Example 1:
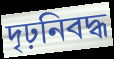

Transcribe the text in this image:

দৃঢ়নিবদ্ধ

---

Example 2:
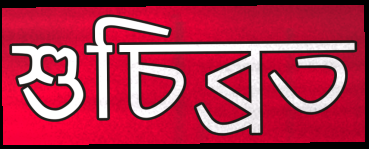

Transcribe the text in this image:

শুচিব্রত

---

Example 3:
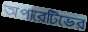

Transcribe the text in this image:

অপারেটিভের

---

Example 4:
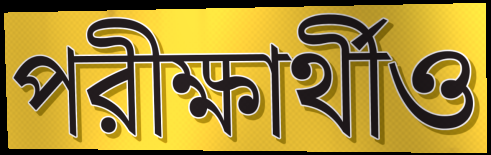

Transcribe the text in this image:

পরীক্ষার্থীও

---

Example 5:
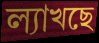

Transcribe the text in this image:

ল্যাখছে